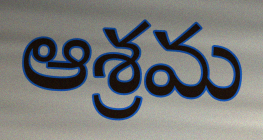
ఆశ్రమ